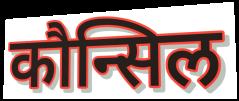
कौन्सिल